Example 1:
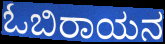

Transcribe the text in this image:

ಓಬಿರಾಯನ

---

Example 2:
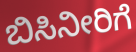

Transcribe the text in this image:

ಬಿಸಿನೀರಿಗೆ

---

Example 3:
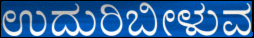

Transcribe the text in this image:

ಉದುರಿಬೀಳುವ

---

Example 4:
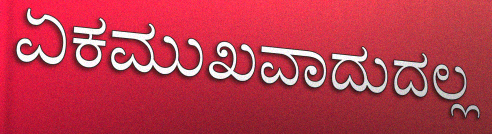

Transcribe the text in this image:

ಏಕಮುಖವಾದುದಲ್ಲ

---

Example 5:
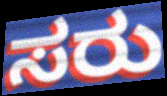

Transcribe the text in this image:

ಸರು